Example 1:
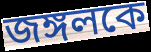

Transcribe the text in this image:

জঙ্গলকে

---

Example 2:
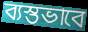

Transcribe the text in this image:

ব্যস্তভাবে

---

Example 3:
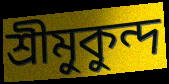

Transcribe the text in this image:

শ্রীমুকুন্দ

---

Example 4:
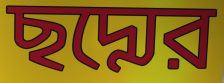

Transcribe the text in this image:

ছদ্মের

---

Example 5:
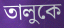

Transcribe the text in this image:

তালুকে